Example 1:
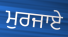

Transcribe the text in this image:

ਮੁਰਜਾਏ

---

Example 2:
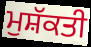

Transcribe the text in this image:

ਮੁਸ਼ੱਕਤੀ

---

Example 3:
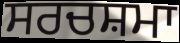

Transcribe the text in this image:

ਸਰਚਸ਼ਮਾ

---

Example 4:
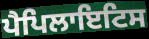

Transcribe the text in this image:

ਪੈਪਿਲਾਇਟਿਸ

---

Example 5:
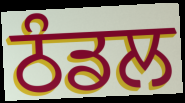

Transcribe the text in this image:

ਠੰਡਲ